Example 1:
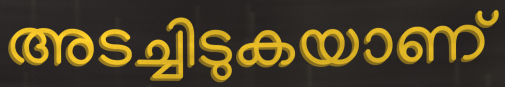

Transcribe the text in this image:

അടച്ചിടുകയാണ്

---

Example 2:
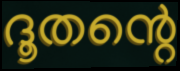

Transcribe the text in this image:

ദൂതന്റെ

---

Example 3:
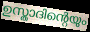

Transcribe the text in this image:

ഉസ്താദിന്റെയും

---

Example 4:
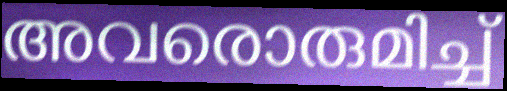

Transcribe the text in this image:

അവരൊരുമിച്ച്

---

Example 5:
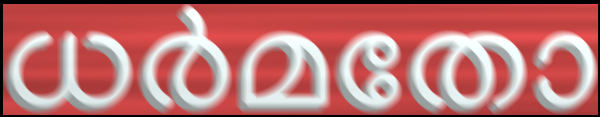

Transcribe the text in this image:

ധർമതോ